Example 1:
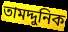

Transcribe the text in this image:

তামদ্দুনিক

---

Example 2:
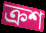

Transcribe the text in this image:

ক্রশ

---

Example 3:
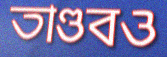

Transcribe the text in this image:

তাণ্ডবও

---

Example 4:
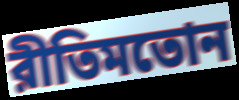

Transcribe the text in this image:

রীতিমতোন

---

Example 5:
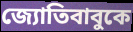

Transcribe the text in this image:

জ্যোতিবাবুকে